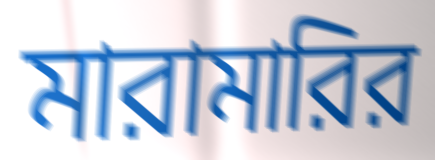
মারামারির